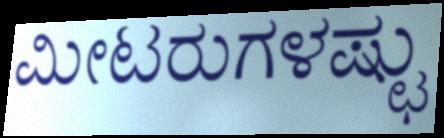
ಮೀಟರುಗಳಷ್ಟು